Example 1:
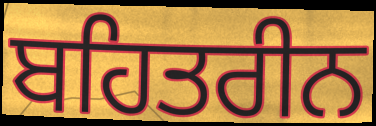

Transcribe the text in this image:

ਬਹਿਤਰੀਨ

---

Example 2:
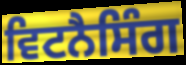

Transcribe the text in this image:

ਵਿਟਨੈਸਿੰਗ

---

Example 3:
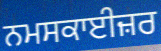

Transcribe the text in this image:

ਨਮਸਕਾਈਜ਼ਰ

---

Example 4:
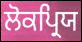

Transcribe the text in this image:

ਲੋਕਪ੍ਰਿਯ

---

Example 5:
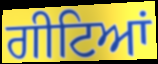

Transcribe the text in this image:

ਗੀਟਿਆਂ